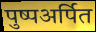
पुष्पअर्पित